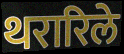
थरारिले